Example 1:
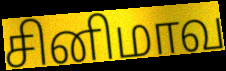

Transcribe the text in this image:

சினிமாவ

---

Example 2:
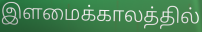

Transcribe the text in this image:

இளமைக்காலத்தில்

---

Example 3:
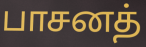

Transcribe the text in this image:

பாசனத்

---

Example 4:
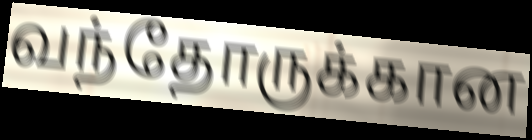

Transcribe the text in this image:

வந்தோருக்கான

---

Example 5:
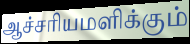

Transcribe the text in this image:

ஆச்சரியமளிக்கும்